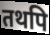
तथपि